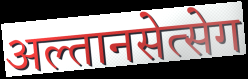
अल्तानसेत्सेग